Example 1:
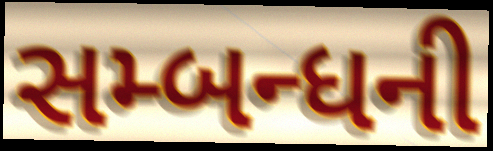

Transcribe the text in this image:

સમ્બન્ધની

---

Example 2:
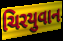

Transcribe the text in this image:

ચિરયુવાન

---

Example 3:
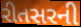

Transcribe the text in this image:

રીતસરની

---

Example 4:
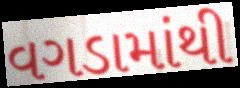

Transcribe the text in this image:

વગડામાંથી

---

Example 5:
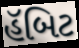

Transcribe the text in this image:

હૅબિટ